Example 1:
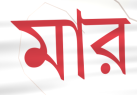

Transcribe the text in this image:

মার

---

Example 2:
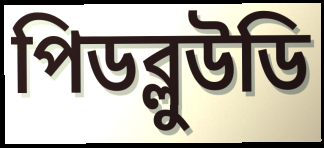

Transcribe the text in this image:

পিডব্লুউডি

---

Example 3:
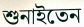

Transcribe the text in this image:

শুনাইতেন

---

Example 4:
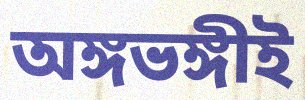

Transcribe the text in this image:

অঙ্গভঙ্গীই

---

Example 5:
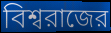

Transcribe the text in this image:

বিশ্বরাজের